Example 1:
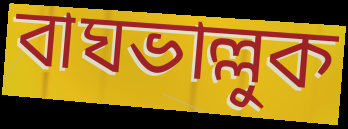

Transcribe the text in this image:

বাঘভাল্লুক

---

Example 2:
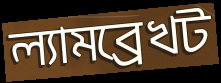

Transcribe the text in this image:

ল্যামব্রেখট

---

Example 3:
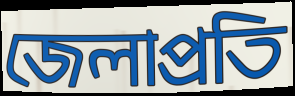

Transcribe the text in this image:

জেলাপ্রতি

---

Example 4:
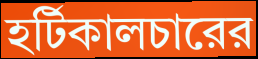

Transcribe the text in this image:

হর্টিকালচারের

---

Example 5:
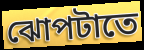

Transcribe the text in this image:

ঝোপটাতে